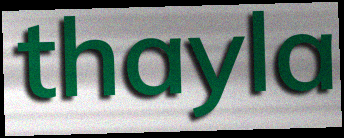
thayla